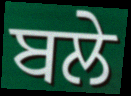
ਬਲੇ